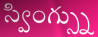
స్వింగ్స్ను